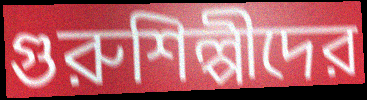
গুরুশিল্পীদের